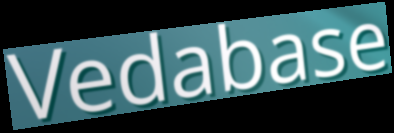
Vedabase